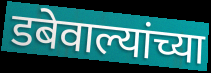
डबेवाल्यांच्या